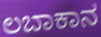
ಲಬಾಕಾನ